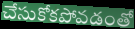
చేసుకోకపోవడంతో